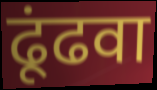
ढूंढवा